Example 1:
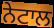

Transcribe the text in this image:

ਨੇਟਾਲ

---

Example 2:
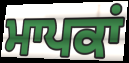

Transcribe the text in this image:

ਮਾਪਕਾਂ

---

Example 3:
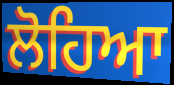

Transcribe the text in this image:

ਲੋਹਿਆ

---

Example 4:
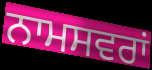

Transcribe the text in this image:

ਨਾਮਸਵਰਾਂ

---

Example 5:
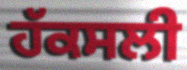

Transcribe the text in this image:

ਹੱਕਸਲੀ